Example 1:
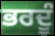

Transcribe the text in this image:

ਭਰਦੂੰ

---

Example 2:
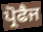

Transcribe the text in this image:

ਪ੍ਰੋਫੈਜ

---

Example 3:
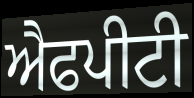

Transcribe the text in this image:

ਐਫਪੀਟੀ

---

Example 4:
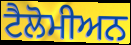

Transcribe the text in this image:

ਟੈਲੋਮੀਅਨ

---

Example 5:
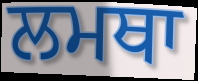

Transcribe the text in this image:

ਲਮਥਾ